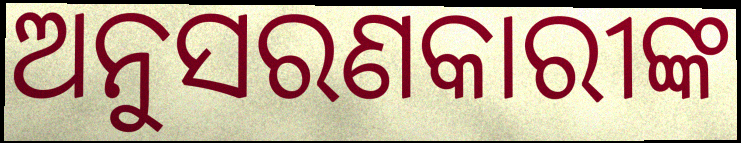
ଅନୁସରଣକାରୀଙ୍କ